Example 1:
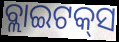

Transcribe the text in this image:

ବ୍ଲାଇଟକ୍‌ସ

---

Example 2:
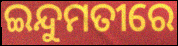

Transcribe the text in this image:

ଇନ୍ଦୁମତୀରେ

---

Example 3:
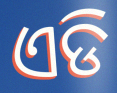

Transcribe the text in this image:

ଏଡି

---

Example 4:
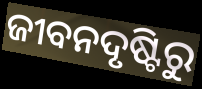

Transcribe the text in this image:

ଜୀବନଦୃଷ୍ଟିରୁ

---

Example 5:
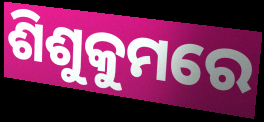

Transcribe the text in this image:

ଶିଶୁକୁମରେ